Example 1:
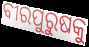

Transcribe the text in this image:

ବୀରପୁରୁଷକୁ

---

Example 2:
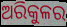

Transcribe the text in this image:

ଅରିକୁଳର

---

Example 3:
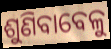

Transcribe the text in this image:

ଶୁଣିବାବେଳୁ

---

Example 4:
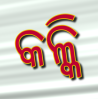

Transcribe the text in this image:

କଳ୍କି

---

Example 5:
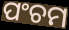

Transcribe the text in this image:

ପଂଚମ